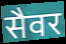
सैवर